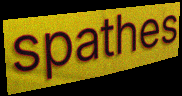
spathes